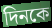
দিনকে